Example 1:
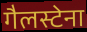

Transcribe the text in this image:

गैलस्टेना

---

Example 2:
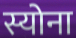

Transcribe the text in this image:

स्योना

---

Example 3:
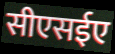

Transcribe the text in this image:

सीएसईए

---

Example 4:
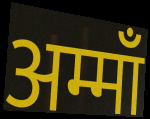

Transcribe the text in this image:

अम्माँ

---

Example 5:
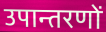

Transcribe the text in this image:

उपान्तरणों